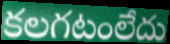
కలగటంలేదు